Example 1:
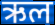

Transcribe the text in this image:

ऋल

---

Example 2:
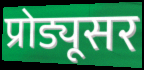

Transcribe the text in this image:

प्रोड्यूसर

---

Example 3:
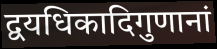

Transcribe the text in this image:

द्वयधिकादिगुणानां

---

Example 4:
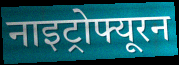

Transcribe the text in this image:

नाइट्रोफ्यूरन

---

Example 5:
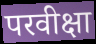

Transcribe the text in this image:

परवीक्षा